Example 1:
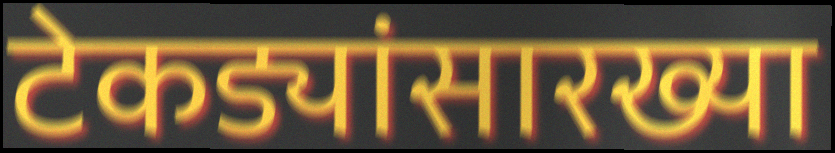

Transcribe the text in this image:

टेकड्यांसारख्या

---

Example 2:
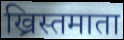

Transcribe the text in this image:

ख्रिस्तमाता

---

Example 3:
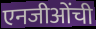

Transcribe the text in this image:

एनजीओंची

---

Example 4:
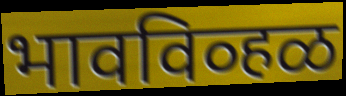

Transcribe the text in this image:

भावविव्हळ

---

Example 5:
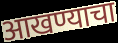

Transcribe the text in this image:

आखण्याचा